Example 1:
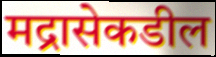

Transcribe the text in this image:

मद्रासेकडील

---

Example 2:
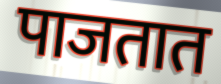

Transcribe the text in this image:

पाजतात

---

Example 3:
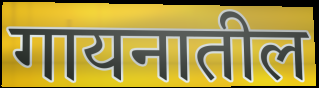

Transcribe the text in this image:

गायनातील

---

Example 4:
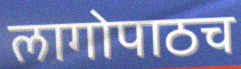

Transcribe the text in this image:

लागोपाठच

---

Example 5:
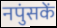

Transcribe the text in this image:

नपुंसकें